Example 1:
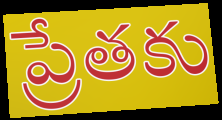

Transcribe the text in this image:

ప్రేతకు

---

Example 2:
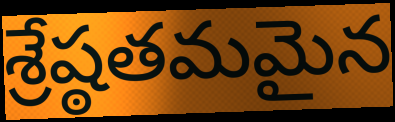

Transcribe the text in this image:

శ్రేష్ఠతమమైన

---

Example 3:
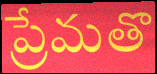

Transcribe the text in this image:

ప్రేమతొ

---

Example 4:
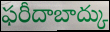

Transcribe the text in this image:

ఫరీదాబాద్కు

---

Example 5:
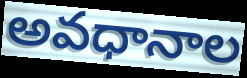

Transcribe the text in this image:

అవధానాల